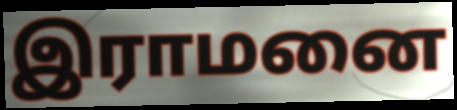
இராமனை